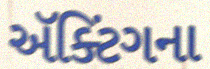
ઍક્ટિંગના